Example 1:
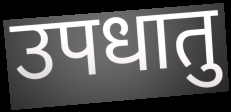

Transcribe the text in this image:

उपधातु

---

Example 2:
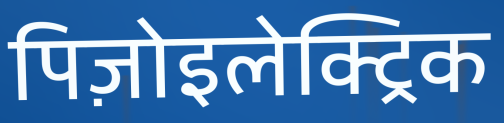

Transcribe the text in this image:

पिज़ोइलेक्ट्रिक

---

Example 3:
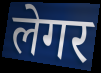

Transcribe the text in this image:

लेगर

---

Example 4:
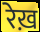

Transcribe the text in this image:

रेख़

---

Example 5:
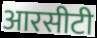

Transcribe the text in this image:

आरसीटी